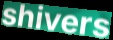
shivers